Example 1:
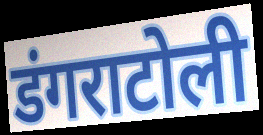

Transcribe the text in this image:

डंगराटोली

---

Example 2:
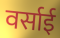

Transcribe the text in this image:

वर्साई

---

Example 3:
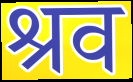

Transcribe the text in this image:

श्रव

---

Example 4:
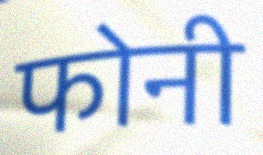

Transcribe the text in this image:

फोनी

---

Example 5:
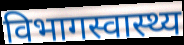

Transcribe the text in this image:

विभागस्वास्थ्य